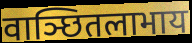
वाञ्छितलाभाय